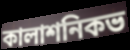
কালাশনিকভ